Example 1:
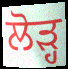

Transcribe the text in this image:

ਲੋੜ੍ਹ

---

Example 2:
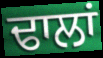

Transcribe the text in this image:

ਢਾਲਾਂ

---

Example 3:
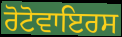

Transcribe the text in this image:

ਰੋਟੋਵਾਇਰਸ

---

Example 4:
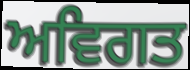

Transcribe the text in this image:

ਅਵਿਗਤ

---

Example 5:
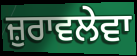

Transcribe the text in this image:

ਜ਼ੁਰਾਵਲੇਵਾ